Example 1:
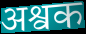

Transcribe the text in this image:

अश्वक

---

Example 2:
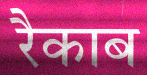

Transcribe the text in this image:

रैकाब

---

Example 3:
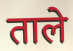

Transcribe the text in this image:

ताले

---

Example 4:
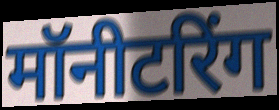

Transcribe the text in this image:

मॉनीटरिंग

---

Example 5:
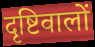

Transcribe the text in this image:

दृष्टिवालों